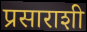
प्रसाराशी